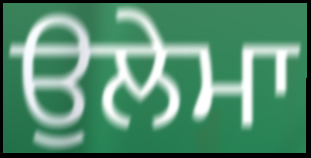
ਉਲੇਮਾ